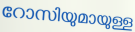
റോസിയുമായുള്ള